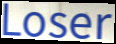
Loser